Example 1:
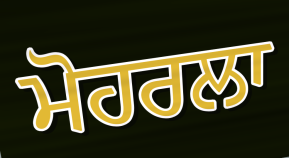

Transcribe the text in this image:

ਮੋਹਰਲਾ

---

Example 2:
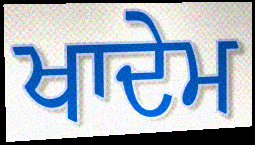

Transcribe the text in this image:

ਖਾਦੇਮ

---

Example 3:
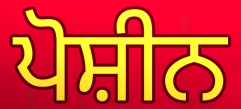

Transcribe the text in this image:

ਪੋਸ਼ੀਨ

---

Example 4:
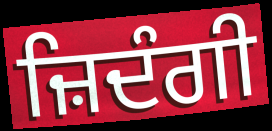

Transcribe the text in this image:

ਜ਼ਿਦੰਗੀ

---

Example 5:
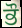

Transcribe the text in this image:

ਭੌ